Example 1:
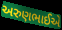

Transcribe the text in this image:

અરુણભાઈએ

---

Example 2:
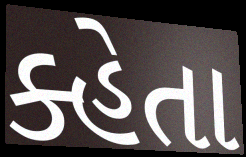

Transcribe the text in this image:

ક્હેતા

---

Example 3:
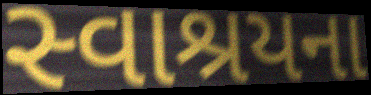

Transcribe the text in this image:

સ્વાશ્રયના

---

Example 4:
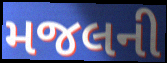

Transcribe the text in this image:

મજલની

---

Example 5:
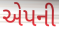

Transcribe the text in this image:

એપની